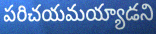
పరిచయమయ్యాడని